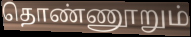
தொண்ணூறும்